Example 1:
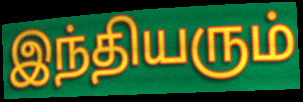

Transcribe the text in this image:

இந்தியரும்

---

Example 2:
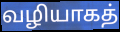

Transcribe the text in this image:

வழியாகத்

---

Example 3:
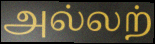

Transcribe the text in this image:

அல்லற்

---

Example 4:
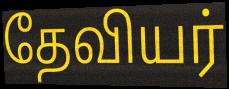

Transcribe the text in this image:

தேவியர்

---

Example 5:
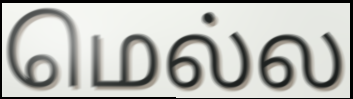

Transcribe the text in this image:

மெல்ல